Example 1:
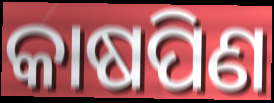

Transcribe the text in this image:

କାଷପିଣ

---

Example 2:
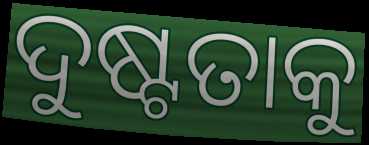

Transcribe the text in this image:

ଦୁଷ୍ଟତାକୁ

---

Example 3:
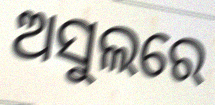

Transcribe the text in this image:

ଅସୁଲରେ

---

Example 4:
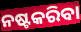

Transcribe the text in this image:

ନଷ୍ଟକରିବା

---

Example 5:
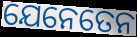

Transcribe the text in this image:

ଯେନେତେନ